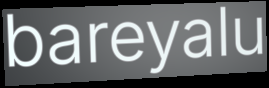
bareyalu